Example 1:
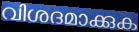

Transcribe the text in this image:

വിശദമാക്കുക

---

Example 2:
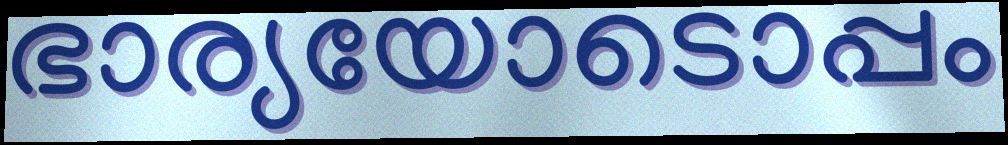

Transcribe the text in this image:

ഭാര്യയോടൊപ്പം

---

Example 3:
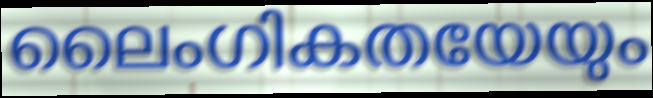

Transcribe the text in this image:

ലൈംഗികതയേയും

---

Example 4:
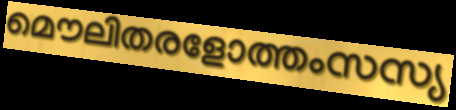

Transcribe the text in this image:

മൌലിതരളോത്തംസസ്യ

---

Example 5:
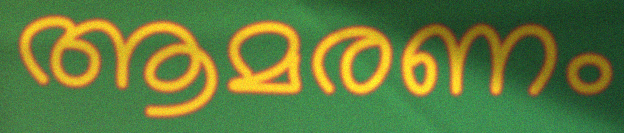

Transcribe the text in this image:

ആമരണം